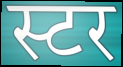
स्टर